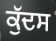
ਕੁੱਦਸ